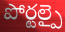
పోర్టల్పై